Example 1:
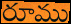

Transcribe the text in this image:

రూము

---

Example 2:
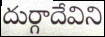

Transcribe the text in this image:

దుర్గాదేవిని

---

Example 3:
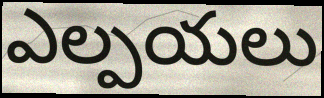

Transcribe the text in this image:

ఎల్పయలు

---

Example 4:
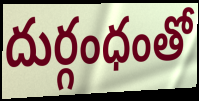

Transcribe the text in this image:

దుర్గంధంతో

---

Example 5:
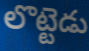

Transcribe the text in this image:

లొట్టెడు